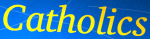
Catholics